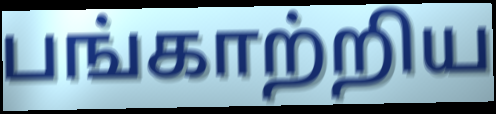
பங்காற்றிய